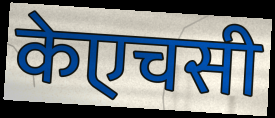
केएचसी